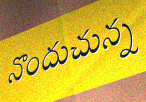
నొందుచున్న